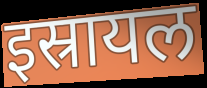
इस्रायल